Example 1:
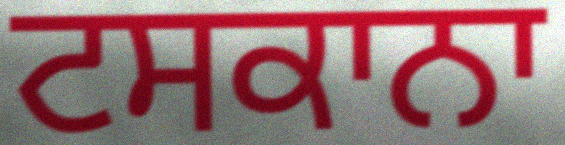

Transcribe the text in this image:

ਟਸਕਾਨਾ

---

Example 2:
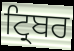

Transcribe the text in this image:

ਟ੍ਰਿਬਰ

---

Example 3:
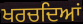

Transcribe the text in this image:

ਖਰਚਦਿਆਂ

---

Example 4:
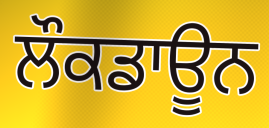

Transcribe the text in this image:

ਲੌਕਡਾਊਨ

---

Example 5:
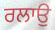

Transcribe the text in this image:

ਰਲਾਉ